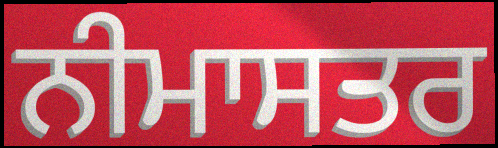
ਨੀਮਾਸਤਰ